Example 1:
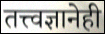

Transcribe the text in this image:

तत्त्वज्ञानेही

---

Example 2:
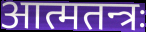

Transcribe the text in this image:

आत्मतन्त्रः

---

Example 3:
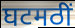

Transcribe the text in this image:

घटमठीं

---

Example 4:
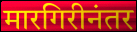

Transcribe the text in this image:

मारगिरीनंतर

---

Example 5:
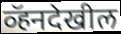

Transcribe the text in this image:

व्हॅनदेखील